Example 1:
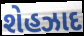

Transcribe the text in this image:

શેહઝાદ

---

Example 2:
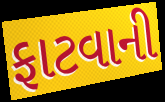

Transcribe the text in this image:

ફાટવાની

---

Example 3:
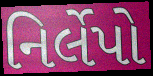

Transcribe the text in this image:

નિર્લેપો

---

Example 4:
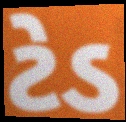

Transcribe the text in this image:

ટેડ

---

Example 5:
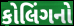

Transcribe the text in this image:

કોલિંગનો